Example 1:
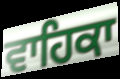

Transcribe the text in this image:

ਵਾਹਿਕਾ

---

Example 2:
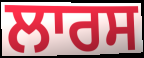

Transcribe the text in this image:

ਲਾਰਸ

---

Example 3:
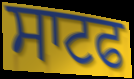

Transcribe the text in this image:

ਸਾਟਫ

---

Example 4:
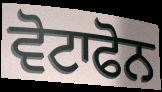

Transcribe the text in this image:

ਵੋਟਾਫੋਨ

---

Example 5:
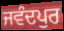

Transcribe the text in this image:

ਜਵੰਦਪੁਰ